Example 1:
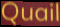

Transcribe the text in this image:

Quail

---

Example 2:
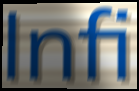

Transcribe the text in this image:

Infi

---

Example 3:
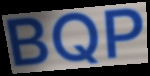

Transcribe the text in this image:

BQP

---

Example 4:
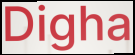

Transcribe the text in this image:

Digha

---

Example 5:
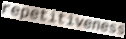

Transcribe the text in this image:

repetitiveness